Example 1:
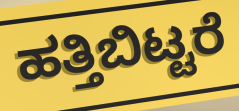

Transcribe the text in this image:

ಹತ್ತಿಬಿಟ್ಟರೆ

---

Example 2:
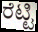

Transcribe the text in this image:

ರೆಟ್ಟಿ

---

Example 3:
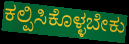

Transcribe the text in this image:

ಕಲ್ಪಿಸಿಕೊಳ್ಳಬೇಕು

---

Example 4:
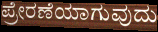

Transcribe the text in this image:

ಪ್ರೇರಣೆಯಾಗುವುದು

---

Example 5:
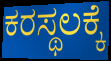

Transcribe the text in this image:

ಕರಸ್ಥಲಕ್ಕೆ